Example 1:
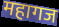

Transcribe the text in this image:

महागज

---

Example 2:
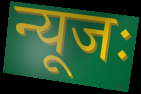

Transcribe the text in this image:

न्यूजः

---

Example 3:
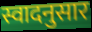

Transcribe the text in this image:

स्वादनुसार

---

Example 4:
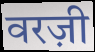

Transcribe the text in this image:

वरज़ी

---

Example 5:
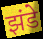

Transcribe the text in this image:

झंडे